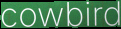
cowbird